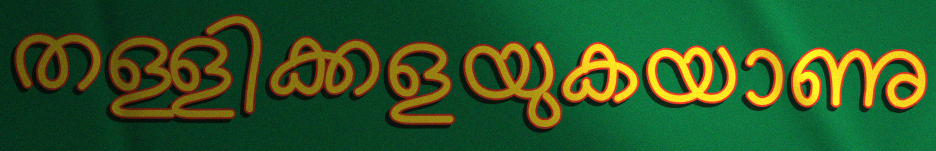
തള്ളിക്കളയുകയാണു